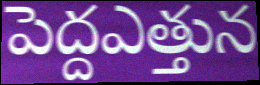
పెద్దఎత్తున